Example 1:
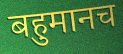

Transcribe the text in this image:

बहुमानच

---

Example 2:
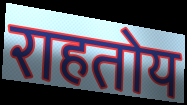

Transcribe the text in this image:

राहतोय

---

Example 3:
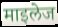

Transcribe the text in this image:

माइलेज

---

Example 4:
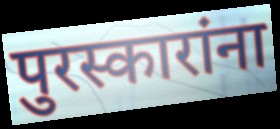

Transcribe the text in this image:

पुरस्कारांना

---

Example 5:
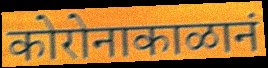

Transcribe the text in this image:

कोरोनाकाळानं